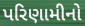
પરિણામીનો